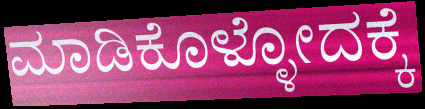
ಮಾಡಿಕೊಳ್ಳೋದಕ್ಕೆ